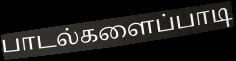
பாடல்களைப்பாடி